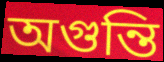
অগুন্তি